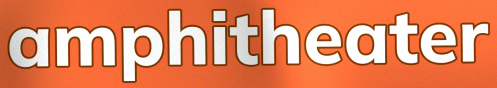
amphitheater